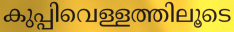
കുപ്പിവെള്ളത്തിലൂടെ